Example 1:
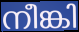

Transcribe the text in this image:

നീങ്കി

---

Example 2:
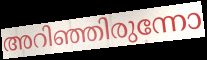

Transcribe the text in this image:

അറിഞ്ഞിരുന്നോ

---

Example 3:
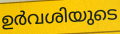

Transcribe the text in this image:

ഉർവശിയുടെ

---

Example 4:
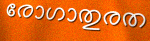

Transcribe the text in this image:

രോഗാതുരത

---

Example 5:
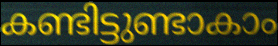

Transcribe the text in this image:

കണ്ടിട്ടുണ്ടാകാം